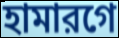
হামারগে